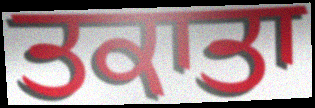
ਤਕਾਤਾ